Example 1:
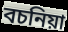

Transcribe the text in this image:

বচনিয়া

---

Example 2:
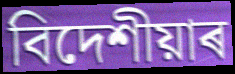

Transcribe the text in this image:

বিদেশীয়াৰ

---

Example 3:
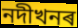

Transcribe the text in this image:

নদীখনৰ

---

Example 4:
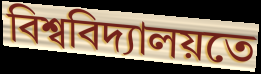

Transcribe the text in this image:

বিশ্ববিদ্যালয়তে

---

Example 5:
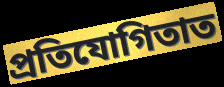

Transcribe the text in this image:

প্ৰতিযোগিতাত